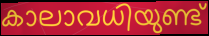
കാലാവധിയുണ്ട്